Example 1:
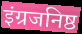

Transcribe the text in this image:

इंग्रजनिष्ठ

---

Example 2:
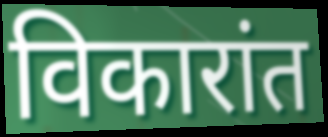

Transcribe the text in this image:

विकारांत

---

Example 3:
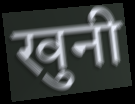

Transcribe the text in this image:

खुनी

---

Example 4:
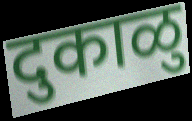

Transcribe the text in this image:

दुकाळु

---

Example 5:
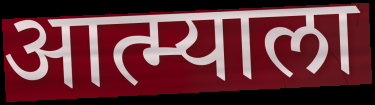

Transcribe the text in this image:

आत्म्याला